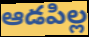
ఆడపిల్ల